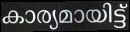
കാര്യമായിട്ട്